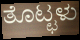
ತೊಟ್ಟಳು